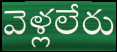
వెళ్లలేరు